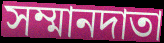
সম্মানদাতা